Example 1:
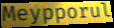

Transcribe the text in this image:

Meypporul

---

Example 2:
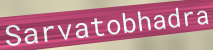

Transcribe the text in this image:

Sarvatobhadra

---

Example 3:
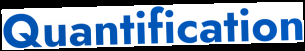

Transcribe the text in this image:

Quantification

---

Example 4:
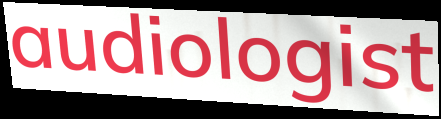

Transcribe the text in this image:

audiologist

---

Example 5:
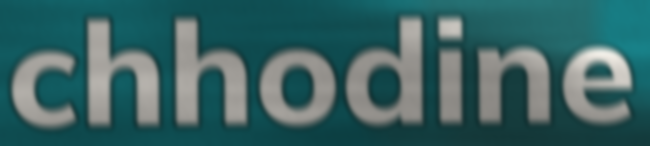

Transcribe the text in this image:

chhodine